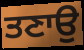
ਤਣਾਉ